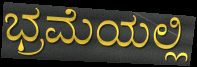
ಭ್ರಮೆಯಲ್ಲಿ